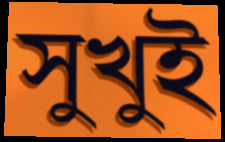
সুখুই